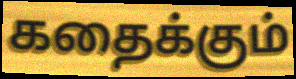
கதைக்கும்